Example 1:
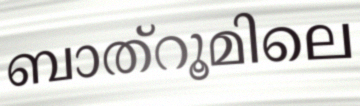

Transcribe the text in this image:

ബാത്റൂമിലെ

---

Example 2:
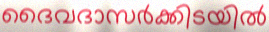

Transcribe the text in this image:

ദൈവദാസർക്കിടയിൽ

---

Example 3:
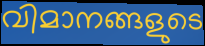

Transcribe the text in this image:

വിമാനങ്ങളുടെ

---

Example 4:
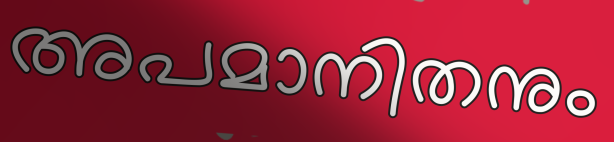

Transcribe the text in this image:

അപമാനിതനും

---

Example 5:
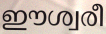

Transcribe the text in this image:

ഈശ്വരീ